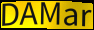
DAMar